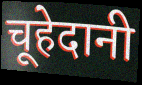
चूहेदानी